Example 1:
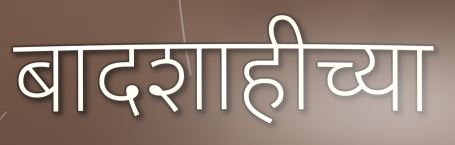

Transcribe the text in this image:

बादशाहीच्या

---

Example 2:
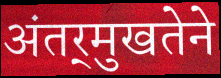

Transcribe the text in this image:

अंतर्मुखतेने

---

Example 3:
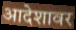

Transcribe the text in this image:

आदेशावर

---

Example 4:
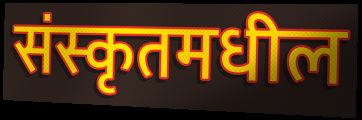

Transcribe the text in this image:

संस्कृतमधील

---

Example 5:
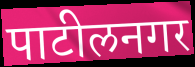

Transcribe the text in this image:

पाटीलनगर